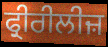
ਫ੍ਰੀਰੀਲੀਜ਼